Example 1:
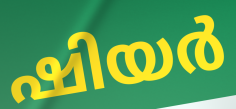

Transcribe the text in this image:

ഷിയർ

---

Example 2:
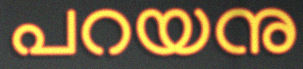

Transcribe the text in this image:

പറയനു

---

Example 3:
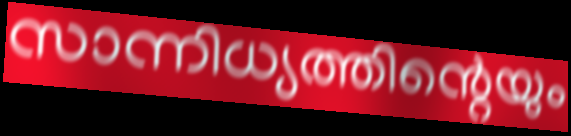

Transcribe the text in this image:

സാന്നിധ്യത്തിന്റെയും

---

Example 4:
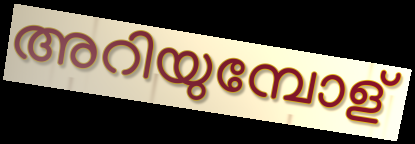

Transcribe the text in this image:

അറിയുമ്പോള്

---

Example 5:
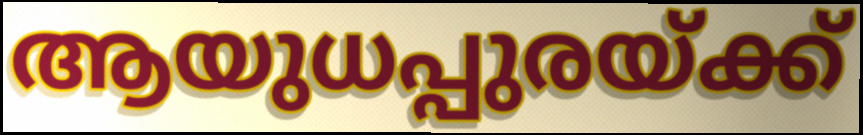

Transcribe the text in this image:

ആയുധപ്പുരയ്ക്ക്